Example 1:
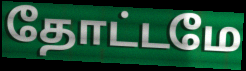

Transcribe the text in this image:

தோட்டமே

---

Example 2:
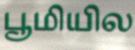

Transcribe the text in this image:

பூமியில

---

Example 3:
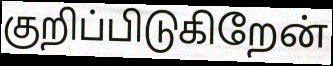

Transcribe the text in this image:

குறிப்பிடுகிறேன்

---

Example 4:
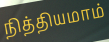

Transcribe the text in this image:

நித்தியமாம்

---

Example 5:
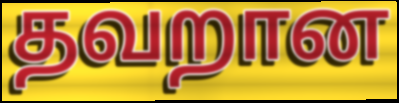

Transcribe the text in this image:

தவறான